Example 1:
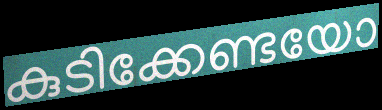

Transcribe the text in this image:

കുടിക്കേണ്ടയോ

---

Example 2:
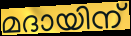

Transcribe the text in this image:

മദായിന്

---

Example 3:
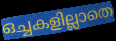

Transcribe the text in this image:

ഒച്ചകളില്ലാതെ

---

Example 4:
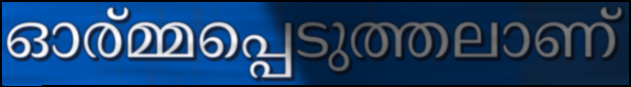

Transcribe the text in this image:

ഓര്മ്മപ്പെടുത്തലാണ്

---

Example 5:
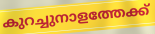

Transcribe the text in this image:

കുറച്ചുനാളത്തേക്ക്